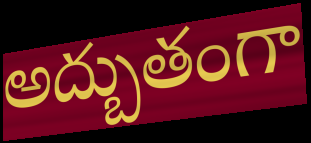
అద్బుతంగా